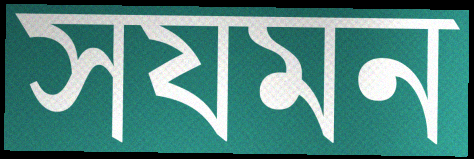
সযমন